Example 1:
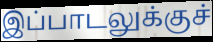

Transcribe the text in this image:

இப்பாடலுக்குச்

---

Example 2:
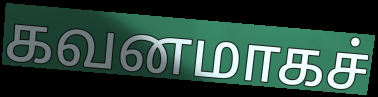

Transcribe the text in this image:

கவனமாகச்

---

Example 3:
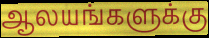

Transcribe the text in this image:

ஆலயங்களுக்கு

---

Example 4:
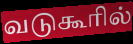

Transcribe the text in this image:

வடுகூரில்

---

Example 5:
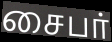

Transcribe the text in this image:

சைபர்